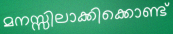
മനസ്സിലാക്കിക്കൊണ്ട്